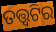
ତତ୍ତ୍ଵଟିର